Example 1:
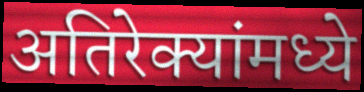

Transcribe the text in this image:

अतिरेक्यांमध्ये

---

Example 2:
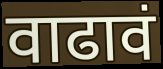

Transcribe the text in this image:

वाढावं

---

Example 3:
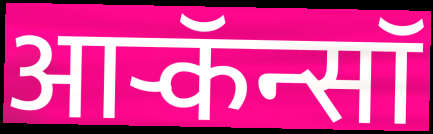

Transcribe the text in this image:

आर्‍कॅन्सॉ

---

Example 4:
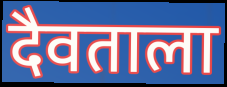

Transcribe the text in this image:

दैवताला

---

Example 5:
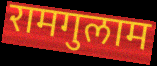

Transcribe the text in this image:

रामगुलाम